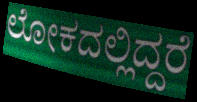
ಲೋಕದಲ್ಲಿದ್ದರೆ